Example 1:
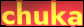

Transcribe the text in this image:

chuka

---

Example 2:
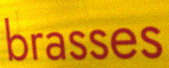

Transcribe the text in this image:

brasses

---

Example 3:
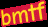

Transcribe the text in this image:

bmtf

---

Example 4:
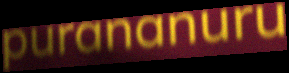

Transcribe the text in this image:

purananuru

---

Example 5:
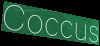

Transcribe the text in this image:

Coccus